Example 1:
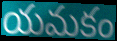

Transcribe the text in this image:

యమకం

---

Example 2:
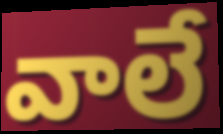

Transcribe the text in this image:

వాలే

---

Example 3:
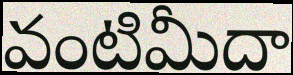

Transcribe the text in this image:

వంటిమీదా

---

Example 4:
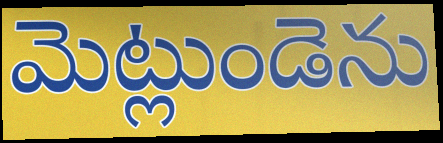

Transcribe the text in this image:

మెట్లుండెను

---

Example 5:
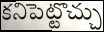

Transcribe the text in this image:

కనిపెట్టొచ్చు